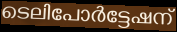
ടെലിപോർട്ടേഷന്